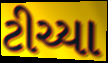
ટીચ્યા